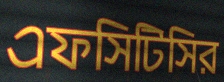
এফসিটিসির